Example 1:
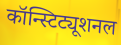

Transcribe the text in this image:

कॉन्स्टिट्यूशनल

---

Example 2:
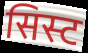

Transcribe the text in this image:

सिस्ट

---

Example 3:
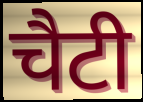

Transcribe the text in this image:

चैटी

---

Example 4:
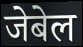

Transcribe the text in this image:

जेबेल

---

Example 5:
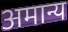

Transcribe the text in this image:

अमान्य